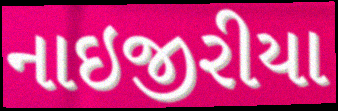
નાઇજીરીયા